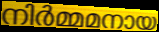
നിർമ്മമനായ